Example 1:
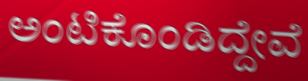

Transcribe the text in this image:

ಅಂಟಿಕೊಂಡಿದ್ದೇವೆ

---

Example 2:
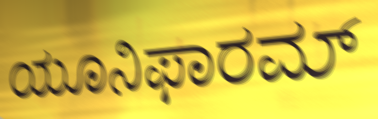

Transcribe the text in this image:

ಯೂನಿಫಾರಮ್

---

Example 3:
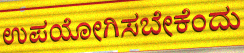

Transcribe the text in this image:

ಉಪಯೋಗಿಸಬೇಕೆಂದು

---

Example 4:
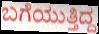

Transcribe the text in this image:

ಬಗೆಯುತ್ತಿದ್ದ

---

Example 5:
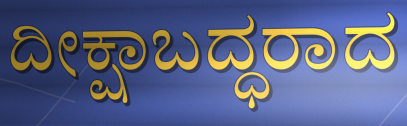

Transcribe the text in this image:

ದೀಕ್ಷಾಬದ್ಧರಾದ